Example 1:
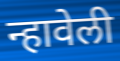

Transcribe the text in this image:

न्हावेली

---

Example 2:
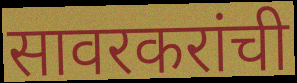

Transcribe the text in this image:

सावरकरांची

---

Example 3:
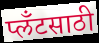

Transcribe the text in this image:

प्लँटसाठी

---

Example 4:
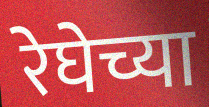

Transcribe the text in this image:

रेघेच्या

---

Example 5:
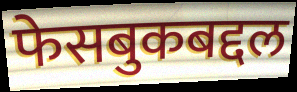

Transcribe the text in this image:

फेसबुकबद्दल